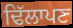
ਢਿੱਲਾਪਣ